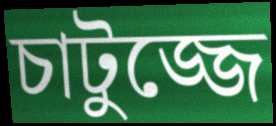
চাটুজ্জে